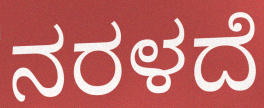
ನರಳದೆ